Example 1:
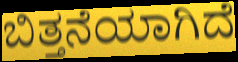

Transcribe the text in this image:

ಬಿತ್ತನೆಯಾಗಿದೆ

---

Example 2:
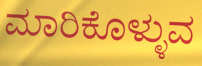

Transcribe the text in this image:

ಮಾರಿಕೊಳ್ಳುವ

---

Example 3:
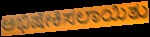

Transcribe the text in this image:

ಅಭಿಷೇಕಿಸಲಾಯಿತು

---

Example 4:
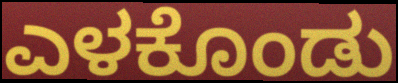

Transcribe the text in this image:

ಎಳಕೊಂಡು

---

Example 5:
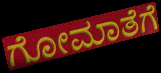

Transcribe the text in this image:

ಗೋಮಾತೆಗೆ